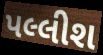
પલ્લીશ